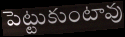
పెట్టుకుంటావు